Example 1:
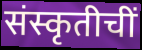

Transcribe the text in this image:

संस्कृतीचीं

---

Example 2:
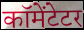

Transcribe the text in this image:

कॉमेंटेटर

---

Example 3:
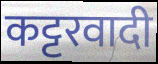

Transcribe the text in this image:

कट्टरवादी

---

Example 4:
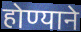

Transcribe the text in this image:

होण्याने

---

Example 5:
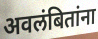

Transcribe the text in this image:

अवलंबितांना